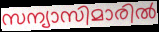
സന്യാസിമാരിൽ